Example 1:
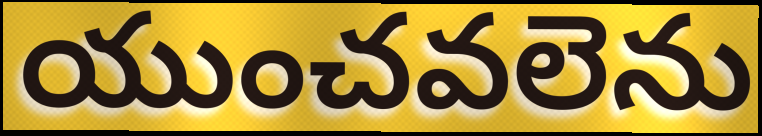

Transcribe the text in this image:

యుంచవలెను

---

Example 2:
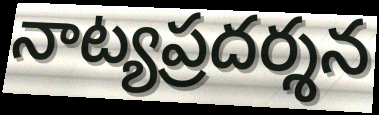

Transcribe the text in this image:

నాట్యప్రదర్శన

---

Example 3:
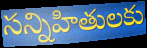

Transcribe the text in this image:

సన్నిహితులకు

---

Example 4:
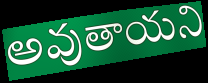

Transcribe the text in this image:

అవుతాయని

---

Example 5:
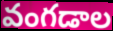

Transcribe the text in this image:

వంగడాల